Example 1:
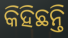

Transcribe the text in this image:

କିହିଛନ୍ତି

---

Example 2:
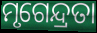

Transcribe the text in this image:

ମୃଗେନ୍ଦ୍ରତା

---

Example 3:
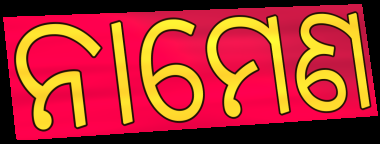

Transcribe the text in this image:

ନାମେଣ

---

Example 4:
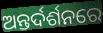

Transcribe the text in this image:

ଅନ୍ତର୍ଦର୍ଶନରେ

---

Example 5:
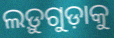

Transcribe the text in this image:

ଲଡ଼ୁଗୁଡ଼ାକୁ